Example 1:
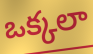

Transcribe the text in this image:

ఒక్కలా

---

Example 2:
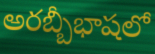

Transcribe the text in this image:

అరబ్బీభాషలో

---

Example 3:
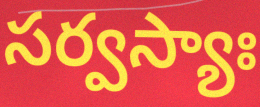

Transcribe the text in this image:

సర్వస్యాః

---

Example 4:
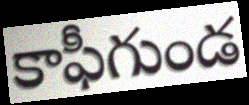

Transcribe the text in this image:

కాఫీగుండ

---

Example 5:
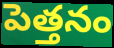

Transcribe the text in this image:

పెత్తనం